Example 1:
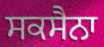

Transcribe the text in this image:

ਸਕਸੈਨਾ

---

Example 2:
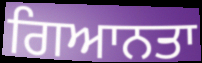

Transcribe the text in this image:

ਗਿਆਨਤਾ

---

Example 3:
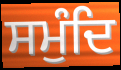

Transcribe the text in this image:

ਸਮੁੰਦਿ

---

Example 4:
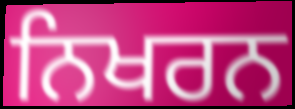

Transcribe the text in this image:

ਨਿਖਰਨ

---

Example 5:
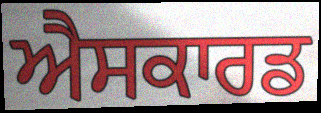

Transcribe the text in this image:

ਐਸਕਾਰਡ